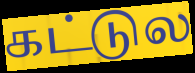
கட்டுல